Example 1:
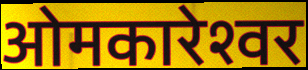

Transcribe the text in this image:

ओमकारेश्वर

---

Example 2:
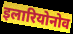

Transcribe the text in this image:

इलारियोनोव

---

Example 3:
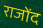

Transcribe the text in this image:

राजोंद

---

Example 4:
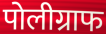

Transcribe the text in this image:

पोलीग्राफ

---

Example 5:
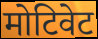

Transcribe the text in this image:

मोटिवेट